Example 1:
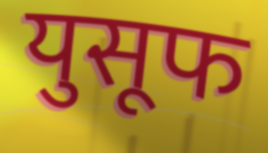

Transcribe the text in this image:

युसूफ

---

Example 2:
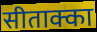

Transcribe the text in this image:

सीताक्का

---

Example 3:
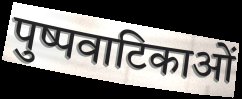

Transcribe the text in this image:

पुष्पवाटिकाओं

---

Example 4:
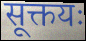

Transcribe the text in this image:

सूक्तयः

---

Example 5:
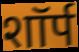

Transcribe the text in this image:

शॉर्प